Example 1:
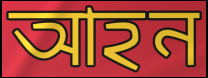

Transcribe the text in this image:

আহন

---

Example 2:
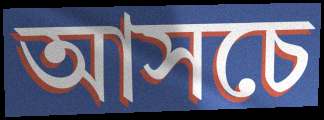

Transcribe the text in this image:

আসচে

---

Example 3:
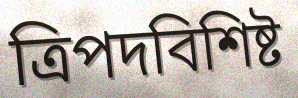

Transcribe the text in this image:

ত্রিপদবিশিষ্ট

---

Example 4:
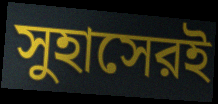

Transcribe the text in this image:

সুহাসেরই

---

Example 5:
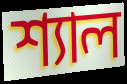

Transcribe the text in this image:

শ্যাল